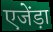
एजेंड़ा